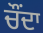
ਚੌਂਦਾ